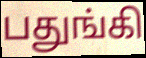
பதுங்கி